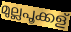
മുല്ലപൂക്കള്